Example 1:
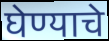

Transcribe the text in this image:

घेण्याचे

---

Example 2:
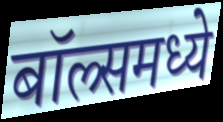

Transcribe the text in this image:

बॉल्समध्ये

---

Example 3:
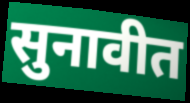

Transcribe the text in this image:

सुनावीत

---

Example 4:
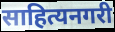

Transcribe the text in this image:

साहित्यनगरी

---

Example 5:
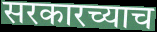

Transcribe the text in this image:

सरकारच्याच